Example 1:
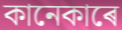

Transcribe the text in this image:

কানেকাৰে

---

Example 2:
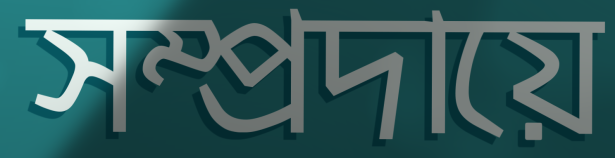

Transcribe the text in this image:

সম্প্ৰদায়ে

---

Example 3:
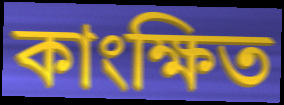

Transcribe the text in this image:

কাংক্ষিত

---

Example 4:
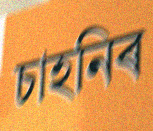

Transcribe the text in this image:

চাহনিৰ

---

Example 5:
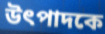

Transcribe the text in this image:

উৎপাদকে